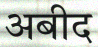
अबीद